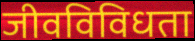
जीवविविधता